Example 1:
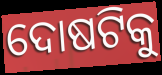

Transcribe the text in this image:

ଦୋଷଟିକୁ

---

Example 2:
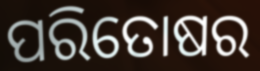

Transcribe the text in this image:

ପରିତୋଷର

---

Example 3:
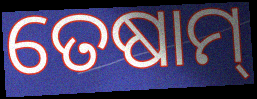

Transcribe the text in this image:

ତେଷାମ୍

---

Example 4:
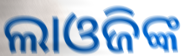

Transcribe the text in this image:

ଲାଓଜିଙ୍କ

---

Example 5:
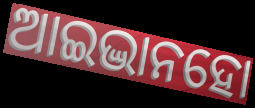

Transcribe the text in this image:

ଆଇଦ୍ଭାନହୋ